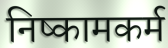
निष्कामकर्म